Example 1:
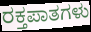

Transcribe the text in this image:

ರಕ್ತಪಾತಗಳು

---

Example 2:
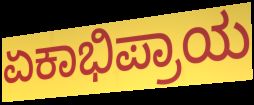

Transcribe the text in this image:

ಏಕಾಭಿಪ್ರಾಯ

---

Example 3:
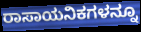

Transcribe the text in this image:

ರಾಸಾಯನಿಕಗಳನ್ನೂ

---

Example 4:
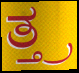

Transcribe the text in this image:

ತ್ತ್ರ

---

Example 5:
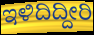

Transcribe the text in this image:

ಇಳಿದಿದ್ದೀರಿ